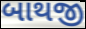
બાથજી